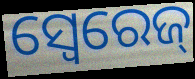
ସ୍ବେରେଜ୍